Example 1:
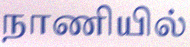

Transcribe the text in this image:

நாணியில்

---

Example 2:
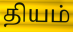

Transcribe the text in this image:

தியம்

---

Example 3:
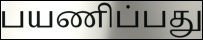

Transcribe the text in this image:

பயணிப்பது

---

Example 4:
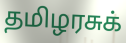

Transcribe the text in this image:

தமிழரசுக்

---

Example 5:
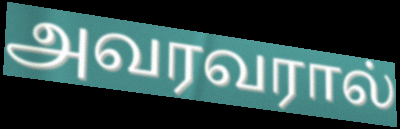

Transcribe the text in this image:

அவரவரால்